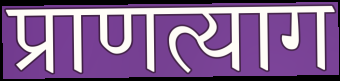
प्राणत्याग